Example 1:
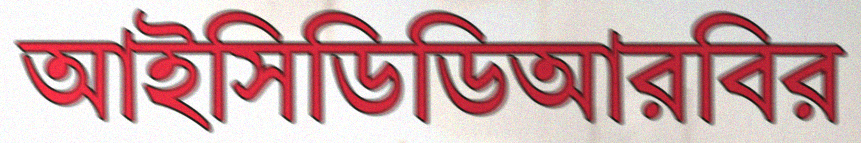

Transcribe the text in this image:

আইসিডিডিআরবির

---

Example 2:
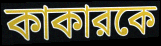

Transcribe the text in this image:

কাকারকে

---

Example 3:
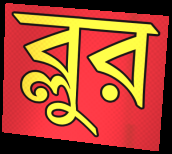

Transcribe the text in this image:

ব্লুর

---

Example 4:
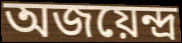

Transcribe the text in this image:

অজয়েন্দ্র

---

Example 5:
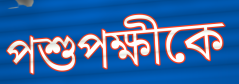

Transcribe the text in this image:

পশুপক্ষীকে